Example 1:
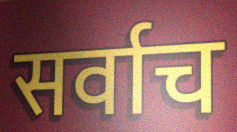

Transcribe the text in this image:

सर्वाच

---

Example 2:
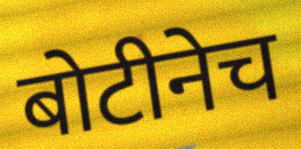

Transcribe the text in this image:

बोटीनेच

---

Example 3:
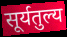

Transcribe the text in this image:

सूर्यतुल्य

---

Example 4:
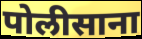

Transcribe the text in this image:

पोलीसाना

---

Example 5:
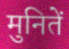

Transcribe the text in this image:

मुनितें